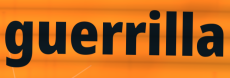
guerrilla